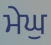
ਮੇਘੁ